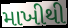
માખીથી